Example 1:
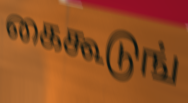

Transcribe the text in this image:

கைகூடுங்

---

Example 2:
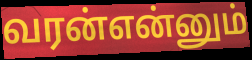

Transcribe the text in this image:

வரன்என்னும்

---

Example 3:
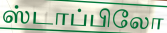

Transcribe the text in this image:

ஸ்டாப்பிலோ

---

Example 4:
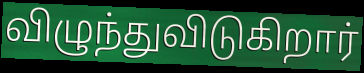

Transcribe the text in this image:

விழுந்துவிடுகிறார்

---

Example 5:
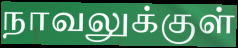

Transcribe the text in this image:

நாவலுக்குள்